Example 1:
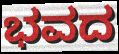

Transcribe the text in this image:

ಭವದ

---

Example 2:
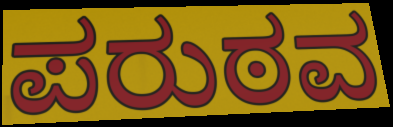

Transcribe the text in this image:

ಪರುಠವ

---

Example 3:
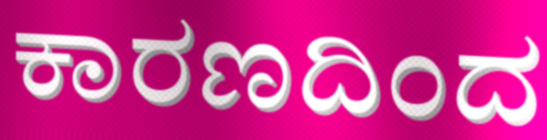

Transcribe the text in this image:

ಕಾರಣದಿಂದ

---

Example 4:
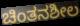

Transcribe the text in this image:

ಚಿಂತನಶೀಲ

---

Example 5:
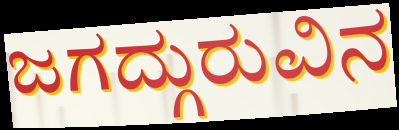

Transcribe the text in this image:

ಜಗದ್ಗುರುವಿನ